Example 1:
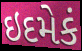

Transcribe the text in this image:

ઇદમેકં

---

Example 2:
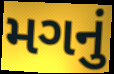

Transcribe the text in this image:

મગનું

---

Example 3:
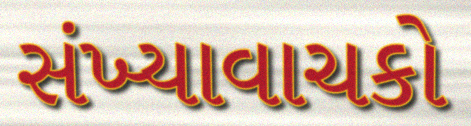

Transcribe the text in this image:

સંખ્યાવાચકો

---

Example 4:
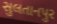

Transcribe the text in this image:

સુલતાનપુર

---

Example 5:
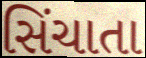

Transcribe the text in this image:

સિંચાતા